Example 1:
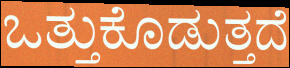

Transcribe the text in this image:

ಒತ್ತುಕೊಡುತ್ತದೆ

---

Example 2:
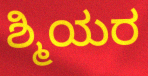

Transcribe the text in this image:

ಶ್ಮಿಯರ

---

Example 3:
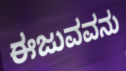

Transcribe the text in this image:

ಈಜುವವನು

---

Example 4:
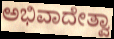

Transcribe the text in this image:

ಅಭಿವಾದೇತ್ವಾ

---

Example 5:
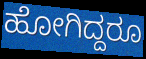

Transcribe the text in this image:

ಹೋಗಿದ್ದರೂ